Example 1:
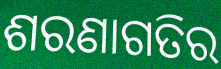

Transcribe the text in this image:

ଶରଣାଗତିର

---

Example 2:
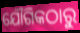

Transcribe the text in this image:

ଯୌଗିକଠାରୁ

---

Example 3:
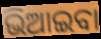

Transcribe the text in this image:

ଭିଆଇବା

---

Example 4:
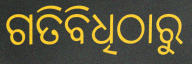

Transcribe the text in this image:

ଗତିବିଧିଠାରୁ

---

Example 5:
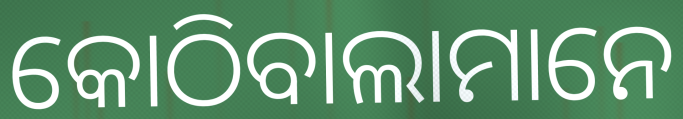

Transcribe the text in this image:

କୋଠିବାଲାମାନେ